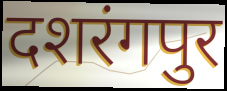
दशरंगपुर